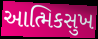
આત્મિકસુખ